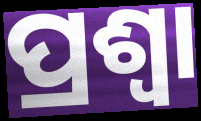
ପ୍ରଶ୍ଵା